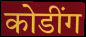
कोडींग